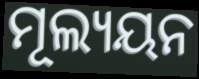
ମୂଲ୍ୟୟନ